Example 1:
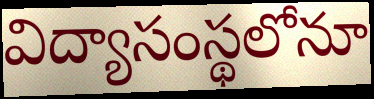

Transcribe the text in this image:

విద్యాసంస్థలోనూ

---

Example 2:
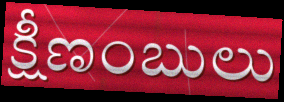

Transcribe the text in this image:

క్షీణంబులు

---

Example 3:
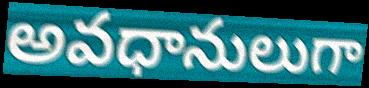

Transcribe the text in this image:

అవధానులుగా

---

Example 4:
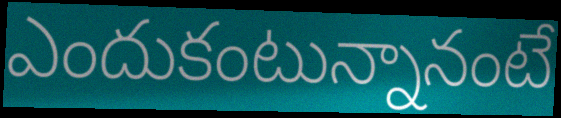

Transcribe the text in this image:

ఎందుకంటున్నానంటే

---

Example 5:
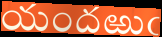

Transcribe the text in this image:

యందఱుఁ